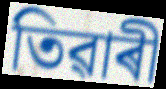
তিৱাৰী